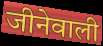
जीनेवाली